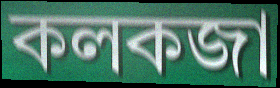
কলকজা